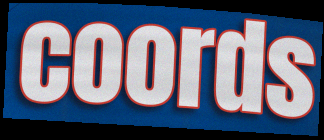
coords